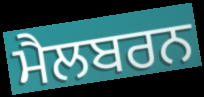
ਮੈਲਬਰਨ